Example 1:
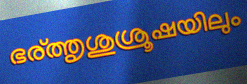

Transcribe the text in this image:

ഭര്ത്തൃശുശ്രൂഷയിലും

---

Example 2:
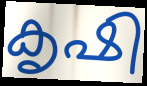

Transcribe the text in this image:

കൃഷി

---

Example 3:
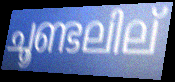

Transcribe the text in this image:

ചൂണ്ടലില്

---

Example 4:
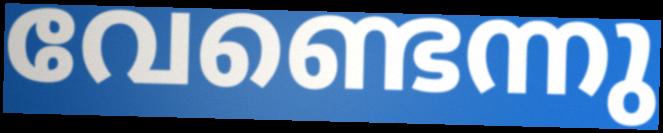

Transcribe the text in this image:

വേണ്ടെന്നു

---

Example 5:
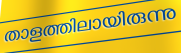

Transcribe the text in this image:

താളത്തിലായിരുന്നു